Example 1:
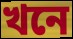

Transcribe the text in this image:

খনে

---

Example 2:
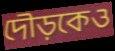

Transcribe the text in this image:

দৌড়কেও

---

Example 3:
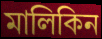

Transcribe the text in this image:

মালিকিন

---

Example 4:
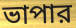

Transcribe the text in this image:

ভাপার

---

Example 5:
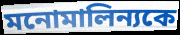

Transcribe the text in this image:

মনোমালিন্যকে